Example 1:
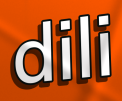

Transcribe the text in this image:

dili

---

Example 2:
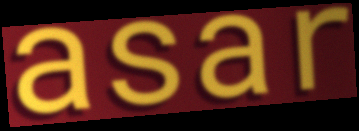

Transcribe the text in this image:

asar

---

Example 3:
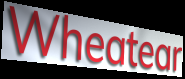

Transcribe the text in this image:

Wheatear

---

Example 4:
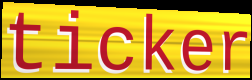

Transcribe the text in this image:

ticker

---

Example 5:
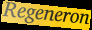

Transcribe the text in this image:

Regeneron